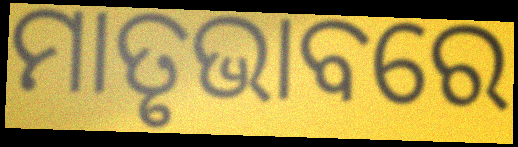
ମାତୃଭାବରେ